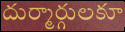
దుర్మార్గులకూ